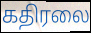
கதிரலை